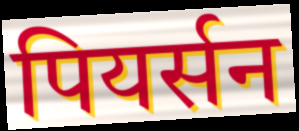
पियर्सन